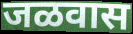
जळवास